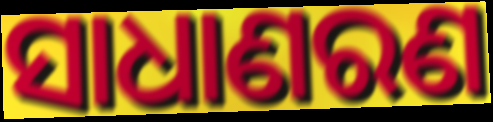
ସାଧାଣରଣ